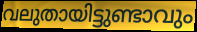
വലുതായിട്ടുണ്ടാവും